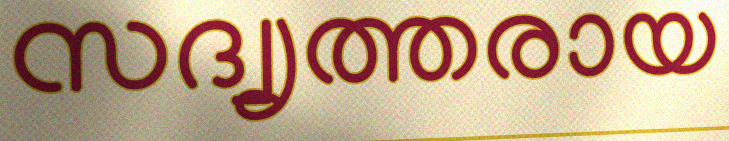
സദ്വൃത്തരായ